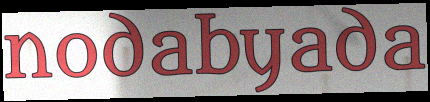
nodabyada